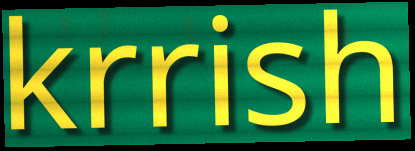
krrish